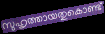
സുഹൃത്തായതുകൊണ്ട്